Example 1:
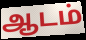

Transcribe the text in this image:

ஆடம்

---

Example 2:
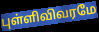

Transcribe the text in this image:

புள்ளிவிவரமே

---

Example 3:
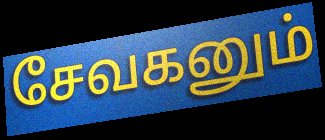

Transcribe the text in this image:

சேவகனும்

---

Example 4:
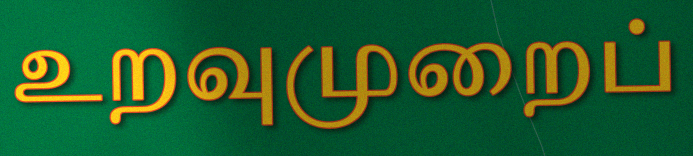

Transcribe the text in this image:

உறவுமுறைப்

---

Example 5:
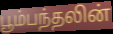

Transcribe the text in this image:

பூம்பந்தலின்